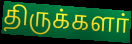
திருக்களர்